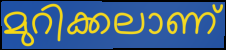
മുറിക്കലാണ്